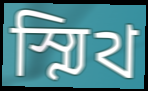
স্মিথ